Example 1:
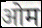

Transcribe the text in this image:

ओम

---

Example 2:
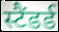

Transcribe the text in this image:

स्टैंडर्ड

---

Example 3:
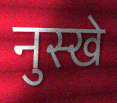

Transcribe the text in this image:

नुस्खे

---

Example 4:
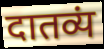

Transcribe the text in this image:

दातव्यं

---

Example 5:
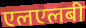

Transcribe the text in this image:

एलएलबी